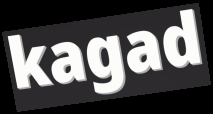
kagad